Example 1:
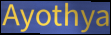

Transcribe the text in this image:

Ayothya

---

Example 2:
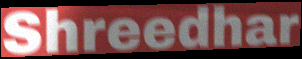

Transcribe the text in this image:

Shreedhar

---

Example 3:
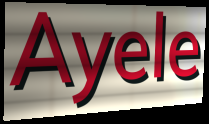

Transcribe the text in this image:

Ayele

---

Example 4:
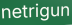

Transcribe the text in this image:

netrigun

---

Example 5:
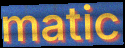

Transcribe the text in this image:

matic